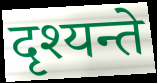
दृश्यन्ते